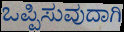
ಒಪ್ಪಿಸುವುದಾಗಿ